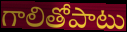
గాలితోపాటు